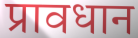
प्रावधान